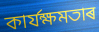
কাৰ্যক্ষমতাৰ